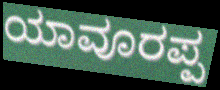
ಯಾವೂರಪ್ಪ